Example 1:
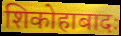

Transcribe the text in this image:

शिकोहाबादः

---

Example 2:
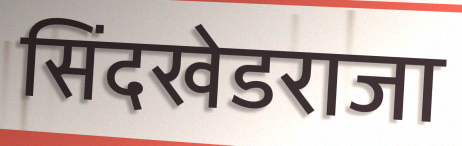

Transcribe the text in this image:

सिंदखेडराजा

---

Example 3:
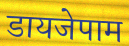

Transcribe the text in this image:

डायजेपाम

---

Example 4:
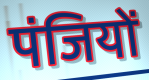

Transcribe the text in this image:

पंजियों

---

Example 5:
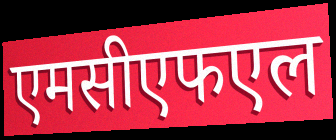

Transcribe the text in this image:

एमसीएफएल